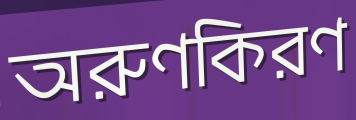
অরুণকিরণ